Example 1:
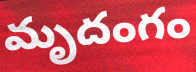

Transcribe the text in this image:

మృదంగం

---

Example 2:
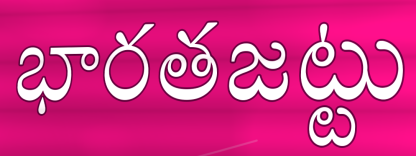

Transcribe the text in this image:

భారతజట్టు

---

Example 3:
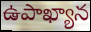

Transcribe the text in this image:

ఉపాఖ్యాన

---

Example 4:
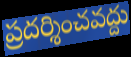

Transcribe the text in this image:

ప్రదర్శించవద్దు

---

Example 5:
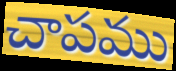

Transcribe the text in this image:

చాపము